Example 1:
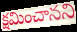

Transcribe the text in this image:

క్షమించానని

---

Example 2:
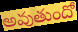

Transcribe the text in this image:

అవుతుందో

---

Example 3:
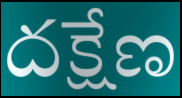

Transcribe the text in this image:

దక్షేణ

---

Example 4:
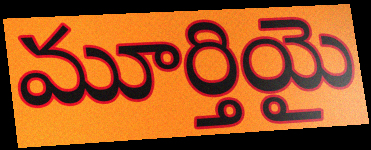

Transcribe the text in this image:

మూర్తియై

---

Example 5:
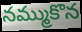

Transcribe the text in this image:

నమ్ముకొన